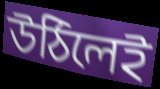
উঠিলেই